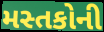
મસ્તકોની